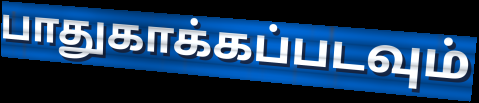
பாதுகாக்கப்படவும்